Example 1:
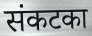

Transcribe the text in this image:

संकटका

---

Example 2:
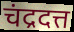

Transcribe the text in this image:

चंद्रदत्त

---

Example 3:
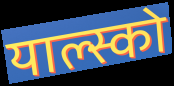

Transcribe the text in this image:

याल्स्को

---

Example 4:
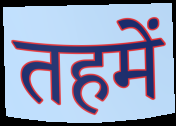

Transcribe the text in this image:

तहमें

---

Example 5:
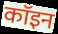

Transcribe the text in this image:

कॉइन